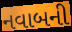
નવાબની